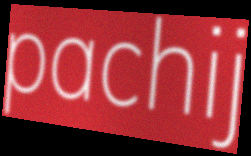
pachij